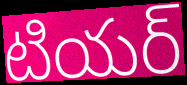
టియర్